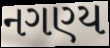
નગણ્ય